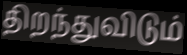
திறந்துவிடும்